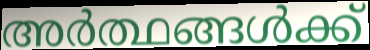
അർത്ഥങ്ങൾക്ക്